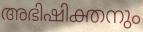
അഭിഷിക്തനും